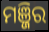
ମଞ୍ଜିର